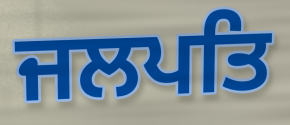
ਜਲਪਤਿ